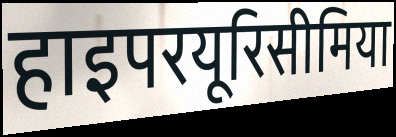
हाइपरयूरिसीमिया